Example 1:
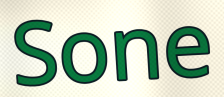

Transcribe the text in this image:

Sone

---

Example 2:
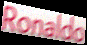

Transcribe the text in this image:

Ronaldo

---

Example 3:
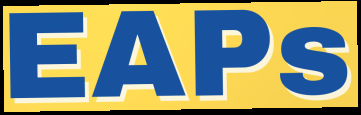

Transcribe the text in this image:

EAPs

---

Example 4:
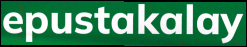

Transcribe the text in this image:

epustakalay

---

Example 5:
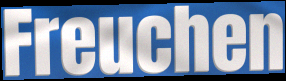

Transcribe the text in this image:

Freuchen